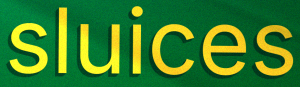
sluices